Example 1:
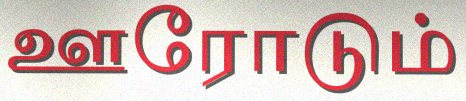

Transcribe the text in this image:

ஊரோடும்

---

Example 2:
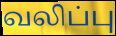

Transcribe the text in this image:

வலிப்பு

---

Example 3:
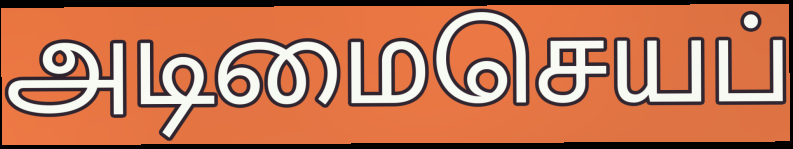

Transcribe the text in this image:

அடிமைசெயப்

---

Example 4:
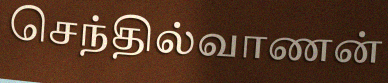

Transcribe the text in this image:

செந்தில்வாணன்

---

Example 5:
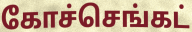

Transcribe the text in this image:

கோச்செங்கட்